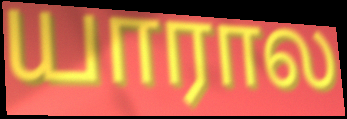
யாரால